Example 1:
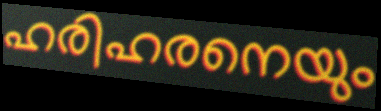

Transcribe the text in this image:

ഹരിഹരനെയും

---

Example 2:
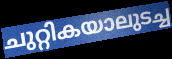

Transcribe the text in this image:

ചുറ്റികയാലുടച്ച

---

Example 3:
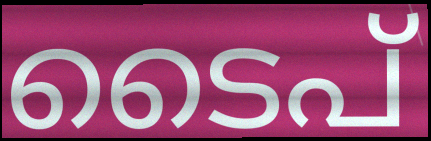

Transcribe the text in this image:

ടൈപ്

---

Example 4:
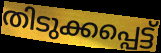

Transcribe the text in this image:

തിടുക്കപ്പെട്ട്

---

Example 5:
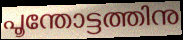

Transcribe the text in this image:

പൂന്തോട്ടത്തിനു